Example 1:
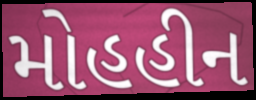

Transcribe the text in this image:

મોહહીન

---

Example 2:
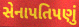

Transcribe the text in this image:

સેનાપતિપણું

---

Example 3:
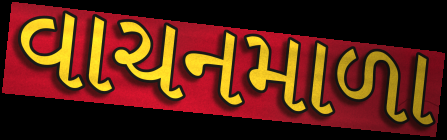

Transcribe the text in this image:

વાચનમાળા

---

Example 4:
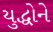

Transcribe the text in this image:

યુદ્ધોને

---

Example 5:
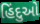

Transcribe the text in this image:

હિંદુઓ